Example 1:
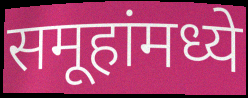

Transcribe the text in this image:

समूहांमध्ये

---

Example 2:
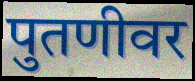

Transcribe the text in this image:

पुतणीवर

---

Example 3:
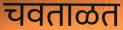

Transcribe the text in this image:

चवताळत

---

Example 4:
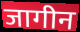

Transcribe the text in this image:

जागीन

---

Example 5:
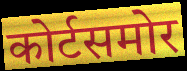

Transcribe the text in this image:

कोर्टसमोर